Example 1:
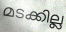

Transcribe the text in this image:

മടക്കില്ല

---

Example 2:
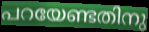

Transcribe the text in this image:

പറയേണ്ടതിനു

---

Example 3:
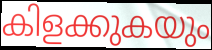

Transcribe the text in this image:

കിളക്കുകയും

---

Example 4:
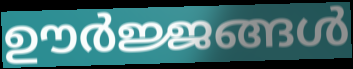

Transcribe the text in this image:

ഊർജ്ജങ്ങൾ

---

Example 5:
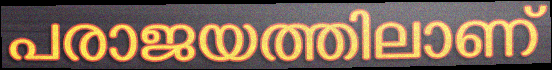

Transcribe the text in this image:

പരാജയത്തിലാണ്